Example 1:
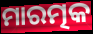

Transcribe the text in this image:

ମାରତ୍ମକ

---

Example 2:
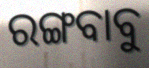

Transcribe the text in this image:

ରଙ୍ଗବାବୁ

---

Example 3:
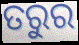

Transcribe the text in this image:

ତରୁର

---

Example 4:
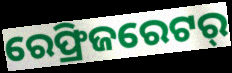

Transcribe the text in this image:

ରେଫ୍ରିଜରେଟର୍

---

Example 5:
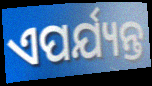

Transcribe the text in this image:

ଏପର୍ଯ୍ୟନ୍ତ